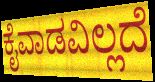
ಕೈವಾಡವಿಲ್ಲದೆ